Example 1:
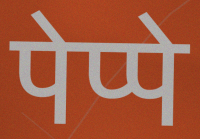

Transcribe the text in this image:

पेप्पे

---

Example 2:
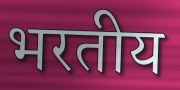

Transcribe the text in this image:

भरतीय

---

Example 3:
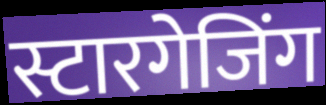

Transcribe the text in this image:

स्टारगेजिंग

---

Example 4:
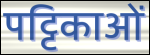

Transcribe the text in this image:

पट्टिकाओं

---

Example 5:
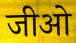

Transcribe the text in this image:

जीओ